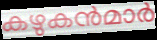
കഴുകൻമാർ